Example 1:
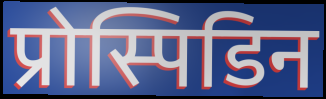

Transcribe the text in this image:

प्रोस्पिडिन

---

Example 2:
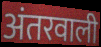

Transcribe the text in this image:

अंतरवाली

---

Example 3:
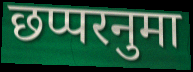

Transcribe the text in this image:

छप्परनुमा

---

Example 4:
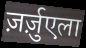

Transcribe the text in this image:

ज़र्ज़ुएला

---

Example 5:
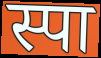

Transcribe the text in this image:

स्पा